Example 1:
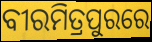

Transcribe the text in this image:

ବୀରମିତ୍ରପୁରରେ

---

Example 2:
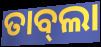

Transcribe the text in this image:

ତାବ୍‌ଲା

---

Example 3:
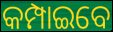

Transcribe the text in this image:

କମ୍ପାଇବେ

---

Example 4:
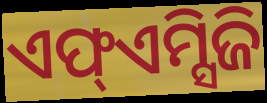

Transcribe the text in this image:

ଏଫ୍ଏମ୍ସିଜି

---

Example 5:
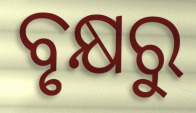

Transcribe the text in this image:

ବୃକ୍ଷରୁ